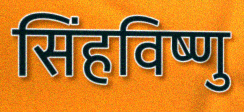
सिंहविष्णु